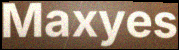
Maxyes